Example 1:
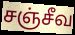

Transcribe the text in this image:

சஞ்சீவ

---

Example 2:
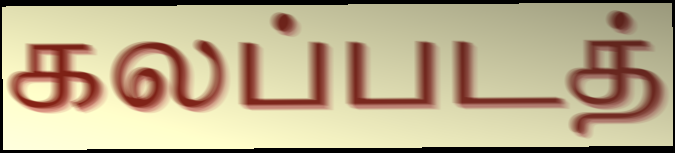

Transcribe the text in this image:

கலப்படத்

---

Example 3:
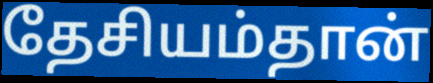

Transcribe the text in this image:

தேசியம்தான்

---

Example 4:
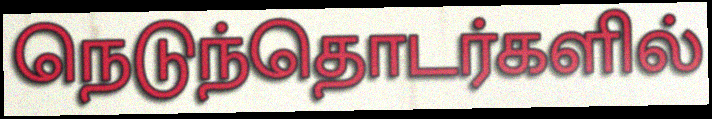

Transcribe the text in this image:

நெடுந்தொடர்களில்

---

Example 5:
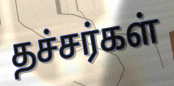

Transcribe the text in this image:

தச்சர்கள்